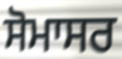
ਸੋਮਾਸਰ